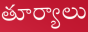
తూర్యాలు